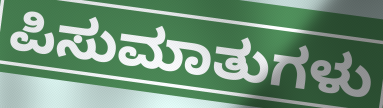
ಪಿಸುಮಾತುಗಳು